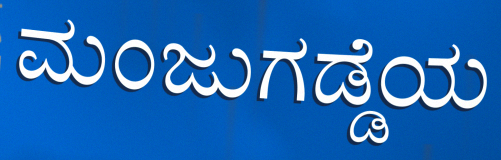
ಮಂಜುಗಡ್ಡೆಯ